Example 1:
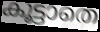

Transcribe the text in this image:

കൂട്ടാതെ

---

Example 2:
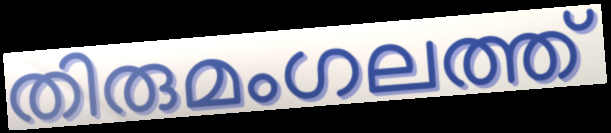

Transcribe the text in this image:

തിരുമംഗലത്ത്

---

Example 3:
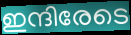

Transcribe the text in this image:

ഇന്ദിരേടെ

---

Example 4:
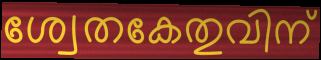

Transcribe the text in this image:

ശ്വേതകേതുവിന്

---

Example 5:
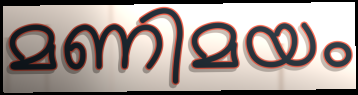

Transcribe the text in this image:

മണിമയം